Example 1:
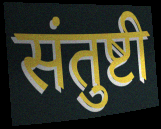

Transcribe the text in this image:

संतुष्टी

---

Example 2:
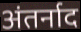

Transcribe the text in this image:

अंतर्नाद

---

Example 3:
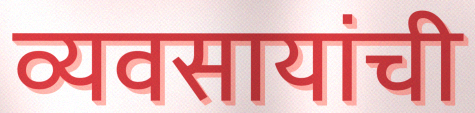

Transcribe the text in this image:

व्यवसायांची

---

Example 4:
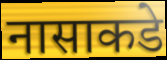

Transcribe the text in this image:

नासाकडे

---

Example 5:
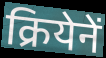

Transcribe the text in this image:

क्रियेनें